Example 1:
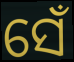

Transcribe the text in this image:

ସେଁ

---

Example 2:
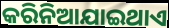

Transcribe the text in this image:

କରିନିଆଯାଇଥାଏ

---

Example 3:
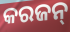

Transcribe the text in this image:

କରଜନ୍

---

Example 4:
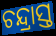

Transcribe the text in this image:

ଚନ୍ଦ୍ରାସ୍ତ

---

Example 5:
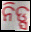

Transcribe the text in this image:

ନିଡ୍ସ